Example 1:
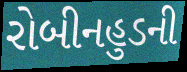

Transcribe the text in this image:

રોબીનહુડની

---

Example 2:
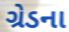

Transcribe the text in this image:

ગ્રેડના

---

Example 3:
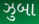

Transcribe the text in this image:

ઝુબા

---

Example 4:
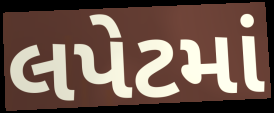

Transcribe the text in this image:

લપેટમાં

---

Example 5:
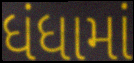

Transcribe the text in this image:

ધંધામાં